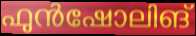
ഫുൻഷോലിങ്